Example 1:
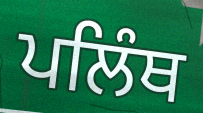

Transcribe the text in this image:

ਪਲਿੰਥ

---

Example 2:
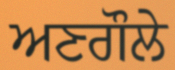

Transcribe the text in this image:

ਅਣਗੌਲੇ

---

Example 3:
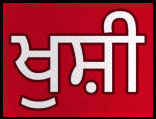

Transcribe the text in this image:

ਖੁਸ਼ੀ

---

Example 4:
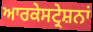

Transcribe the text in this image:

ਆਰਕੇਸਟ੍ਰੇਸ਼ਨਾਂ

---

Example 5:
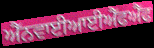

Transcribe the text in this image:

ਐੱਨਵਾਈਆਈਐੱਫਐੱਫ